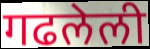
गढलेली